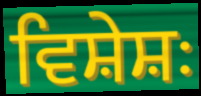
ਵਿਸ਼ੇਸ਼ਃ